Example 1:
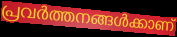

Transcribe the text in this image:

പ്രവർത്തനങ്ങൾക്കാണ്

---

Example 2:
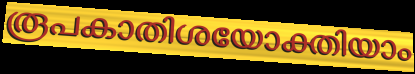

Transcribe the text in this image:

രൂപകാതിശയോക്തിയാം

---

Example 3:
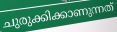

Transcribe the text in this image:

ചുരുക്കിക്കാണുന്നത്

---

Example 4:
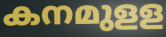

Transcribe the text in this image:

കനമുളള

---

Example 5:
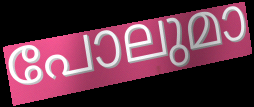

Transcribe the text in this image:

പോലുമാ